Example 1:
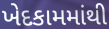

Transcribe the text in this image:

ખેદકામમાંથી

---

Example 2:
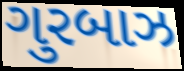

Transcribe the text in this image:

ગુરબાઝ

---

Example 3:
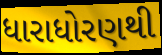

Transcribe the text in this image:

ધારાધોરણથી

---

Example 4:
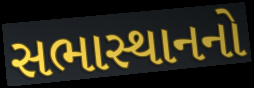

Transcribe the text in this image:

સભાસ્થાનનો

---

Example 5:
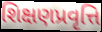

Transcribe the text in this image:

શિક્ષણપ્રવૃત્તિ